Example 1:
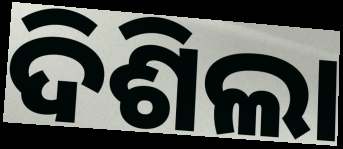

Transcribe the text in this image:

ଦିଶିଲା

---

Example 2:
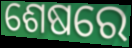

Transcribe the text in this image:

ଶେଷରେ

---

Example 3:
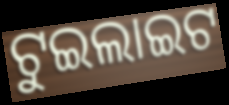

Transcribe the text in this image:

ଟୁଇଲାଇଟ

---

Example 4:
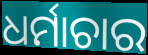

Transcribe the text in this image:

ଧର୍ମାଚାର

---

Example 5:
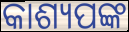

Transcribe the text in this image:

କାଶ୍ୟପଙ୍କ